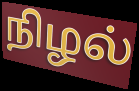
நிழல்